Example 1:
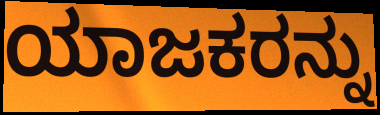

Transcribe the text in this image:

ಯಾಜಕರನ್ನು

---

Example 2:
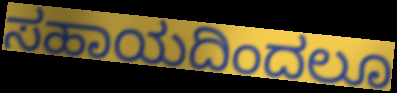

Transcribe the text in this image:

ಸಹಾಯದಿಂದಲೂ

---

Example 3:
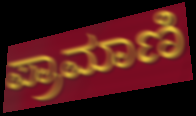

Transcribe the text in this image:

ಪ್ರಾಮಾಣಿ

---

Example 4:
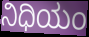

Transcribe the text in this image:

ನಿಧಿಯಂ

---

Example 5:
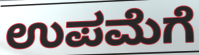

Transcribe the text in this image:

ಉಪಮೆಗೆ